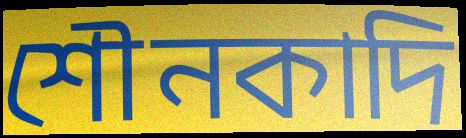
শৌনকাদি